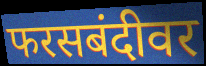
फरसबंदीवर